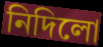
নিদিলো